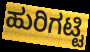
ಹುರಿಗಟ್ಟಿ